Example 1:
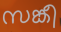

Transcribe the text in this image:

സങ്കീ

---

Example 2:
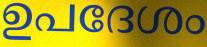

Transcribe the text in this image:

ഉപദേശം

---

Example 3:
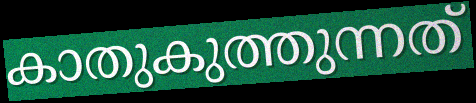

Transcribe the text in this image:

കാതുകുത്തുന്നത്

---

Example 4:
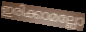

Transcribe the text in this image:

ഇരിക്കാമല്ലോ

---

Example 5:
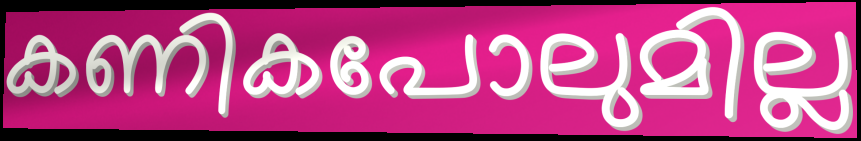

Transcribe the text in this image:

കണികപോലുമില്ല